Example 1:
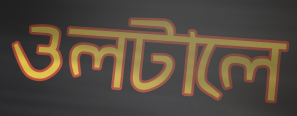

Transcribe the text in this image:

ওলটালে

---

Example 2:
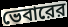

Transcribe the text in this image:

ভেবারের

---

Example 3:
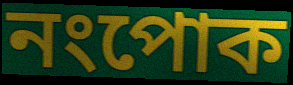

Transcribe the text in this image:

নংপোক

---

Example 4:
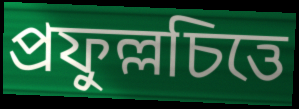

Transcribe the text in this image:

প্রফুল্লচিত্তে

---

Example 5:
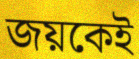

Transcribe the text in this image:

জয়কেই